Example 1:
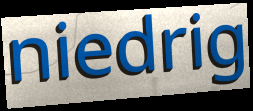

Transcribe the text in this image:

niedrig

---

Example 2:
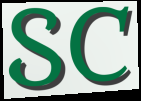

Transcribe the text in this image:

SC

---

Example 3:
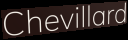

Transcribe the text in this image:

Chevillard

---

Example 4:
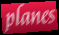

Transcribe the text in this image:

planes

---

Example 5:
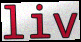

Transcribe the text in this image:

liv